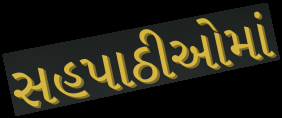
સહપાઠીઓમાં